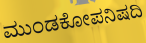
ಮುಂಡಕೋಪನಿಷದಿ